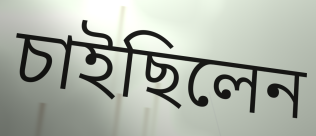
চাইছিলেন